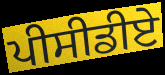
ਪੀਸੀਡੀਏ